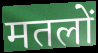
मतलों